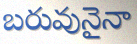
బరువునైనా